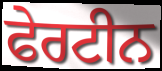
ਫੇਰਟੀਨ